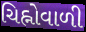
ચિહ્નોવાળી